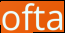
ofta